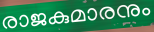
രാജകുമാരനും